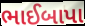
ભાઈબાપા